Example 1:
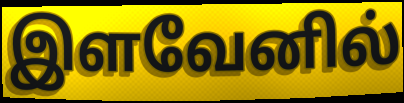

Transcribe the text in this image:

இளவேனில்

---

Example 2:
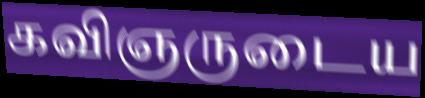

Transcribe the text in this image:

கவிஞருடைய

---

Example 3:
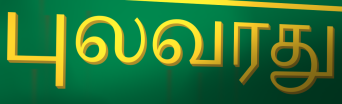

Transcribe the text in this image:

புலவரது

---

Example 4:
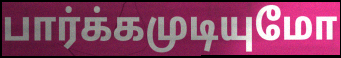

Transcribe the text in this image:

பார்க்கமுடியுமோ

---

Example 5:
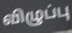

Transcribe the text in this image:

விழுப்பு